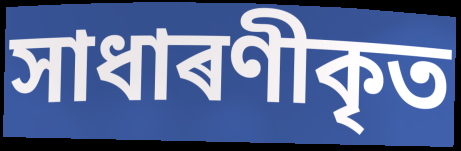
সাধাৰণীকৃত